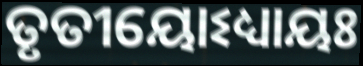
ତୃତୀୟୋଽଧ୍ୟାୟଃ